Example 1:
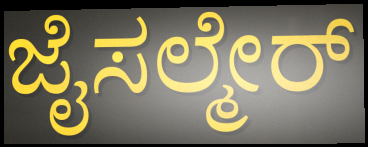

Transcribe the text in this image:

ಜೈಸಲ್ಮೇರ್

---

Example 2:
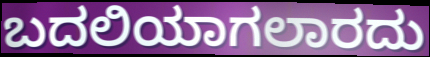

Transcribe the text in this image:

ಬದಲಿಯಾಗಲಾರದು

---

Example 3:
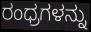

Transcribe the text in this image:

ರಂಧ್ರಗಳನ್ನು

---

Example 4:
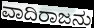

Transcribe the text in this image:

ವಾದಿರಾಜನು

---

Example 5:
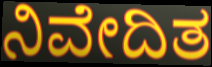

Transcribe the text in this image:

ನಿವೇದಿತ